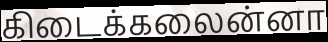
கிடைக்கலைன்னா